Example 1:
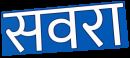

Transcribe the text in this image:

सवरा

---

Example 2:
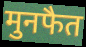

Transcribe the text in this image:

मुनफैत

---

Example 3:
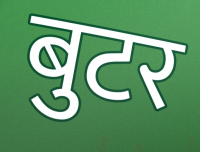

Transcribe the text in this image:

बुटर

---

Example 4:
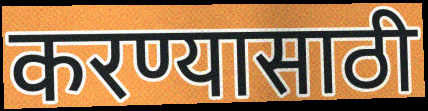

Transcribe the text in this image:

करण्यासाठी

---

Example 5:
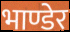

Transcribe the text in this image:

भाण्डेर